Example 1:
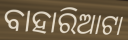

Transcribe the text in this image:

ବାହାରିଆଟା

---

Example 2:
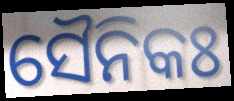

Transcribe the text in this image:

ସୈନିକଃ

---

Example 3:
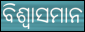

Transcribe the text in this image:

ବିଶ୍ଵାସମାନ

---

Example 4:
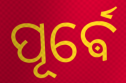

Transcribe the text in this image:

ପୂର୍ଵେ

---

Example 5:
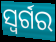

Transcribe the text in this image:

ସ୍ୱର୍ଗର